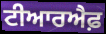
ਟੀਆਰਐਫ਼